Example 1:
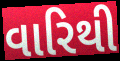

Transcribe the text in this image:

વારિથી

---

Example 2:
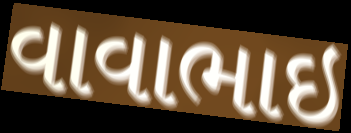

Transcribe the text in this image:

વાવાભાઇ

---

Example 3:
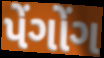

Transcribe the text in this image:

પેંગોંગ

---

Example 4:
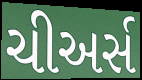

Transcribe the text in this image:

ચીઅર્સ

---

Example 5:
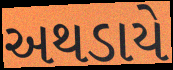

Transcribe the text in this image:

અથડાયે